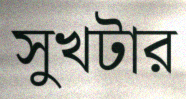
সুখটার